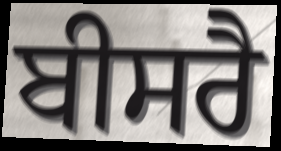
ਬੀਸਰੈ